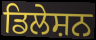
ਡਿਲੇਸ਼ਨ